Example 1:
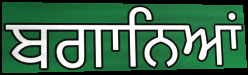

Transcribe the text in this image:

ਬਗਾਨਿਆਂ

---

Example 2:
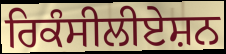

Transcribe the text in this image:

ਰਿਕੰਸੀਲੀਏਸ਼ਨ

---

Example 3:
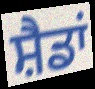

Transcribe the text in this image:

ਸ਼ੈਡਾਂ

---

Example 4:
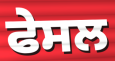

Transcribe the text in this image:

ਫੇਸਲ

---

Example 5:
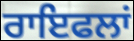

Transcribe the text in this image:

ਰਾਇਫਲਾਂ